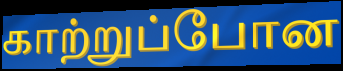
காற்றுப்போன